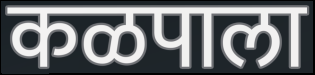
कळपाला